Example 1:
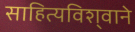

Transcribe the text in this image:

साहित्यविश्वाने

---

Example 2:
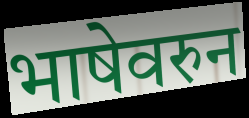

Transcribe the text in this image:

भाषेवरुन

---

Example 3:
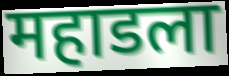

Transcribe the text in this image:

महाडला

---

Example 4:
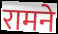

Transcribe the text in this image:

रामने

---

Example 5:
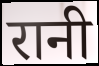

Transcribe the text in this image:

रानी